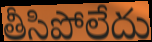
తీసిపోలేదు